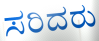
ಸರಿದರು